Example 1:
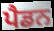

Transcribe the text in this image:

ਪੈਡਨ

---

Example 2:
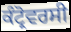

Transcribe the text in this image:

ਕੰਟ੍ਰੋਵਰਸੀ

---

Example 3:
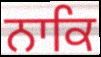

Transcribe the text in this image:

ਨਾਕਿ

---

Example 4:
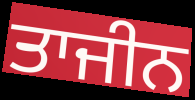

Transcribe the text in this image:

ਤਾਜੀਨ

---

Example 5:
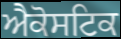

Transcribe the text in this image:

ਐਕੋਸਟਿਕ